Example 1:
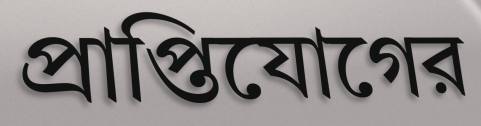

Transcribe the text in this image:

প্রাপ্তিযোগের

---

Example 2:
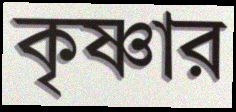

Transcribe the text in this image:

কৃষ্ণার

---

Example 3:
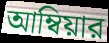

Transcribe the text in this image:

আম্বিয়ার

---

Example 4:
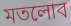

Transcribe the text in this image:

মতলোব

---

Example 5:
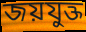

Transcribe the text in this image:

জয়যুক্ত